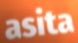
asita